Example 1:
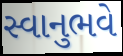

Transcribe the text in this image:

સ્વાનુભવે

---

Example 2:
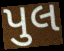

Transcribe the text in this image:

પુલ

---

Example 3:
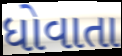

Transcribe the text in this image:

ધોવાતા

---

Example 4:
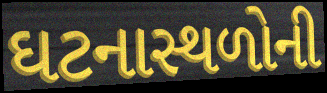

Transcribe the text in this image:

ઘટનાસ્થળોની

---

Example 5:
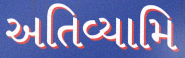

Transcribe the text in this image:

અતિવ્યામિ